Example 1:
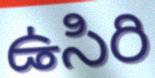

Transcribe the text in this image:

ఉసిరి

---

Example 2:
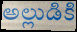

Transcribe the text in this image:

అల్లుడికి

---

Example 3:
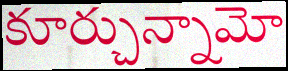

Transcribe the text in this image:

కూర్చున్నామో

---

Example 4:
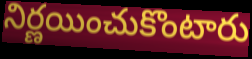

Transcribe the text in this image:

నిర్ణయించుకొంటారు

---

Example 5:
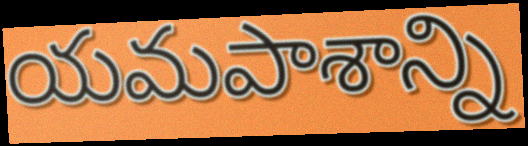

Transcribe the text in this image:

యమపాశాన్ని